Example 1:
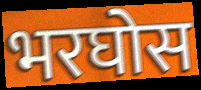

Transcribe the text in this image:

भरघोस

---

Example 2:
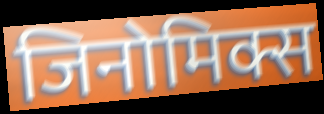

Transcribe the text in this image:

जिनोमिक्स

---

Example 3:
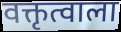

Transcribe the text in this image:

वक्तृत्वाला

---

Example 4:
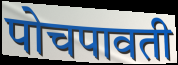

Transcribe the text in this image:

पोचपावती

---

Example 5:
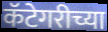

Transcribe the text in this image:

कॅटेगरीच्या